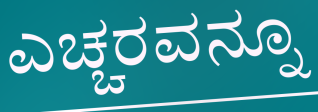
ಎಚ್ಚರವನ್ನೂ